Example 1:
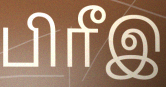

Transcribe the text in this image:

பிரீஇ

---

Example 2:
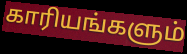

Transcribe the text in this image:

காரியங்களும்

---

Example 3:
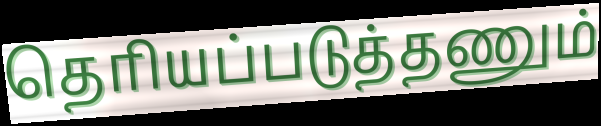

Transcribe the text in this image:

தெரியப்படுத்தணும்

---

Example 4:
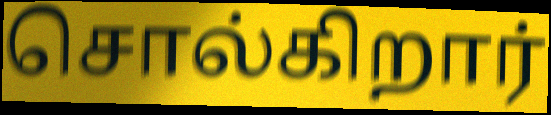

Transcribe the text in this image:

சொல்கிறார்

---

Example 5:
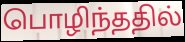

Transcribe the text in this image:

பொழிந்ததில்